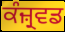
ਕੰਜ਼੍ਰਵਡ